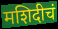
मशिदीचं